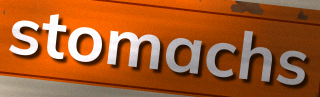
stomachs